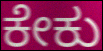
ಕೇಕು